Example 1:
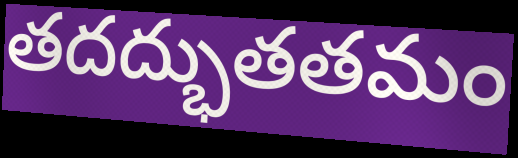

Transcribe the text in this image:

తదద్భుతతమం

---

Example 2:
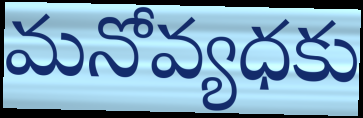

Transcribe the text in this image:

మనోవ్యధకు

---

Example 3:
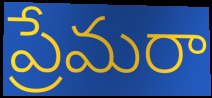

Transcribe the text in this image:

ప్రేమరా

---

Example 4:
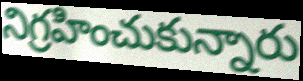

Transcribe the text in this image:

నిగ్రహించుకున్నారు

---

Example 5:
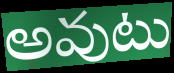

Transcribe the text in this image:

అవుటు